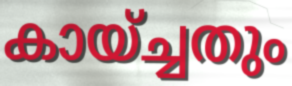
കായ്ച്ചതും